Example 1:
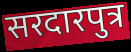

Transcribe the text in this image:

सरदारपुत्र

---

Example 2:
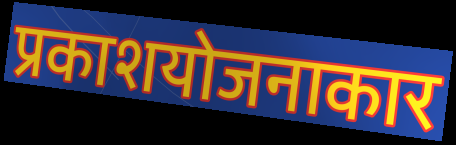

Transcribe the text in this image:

प्रकाशयोजनाकार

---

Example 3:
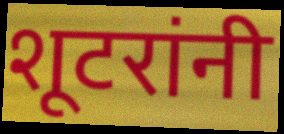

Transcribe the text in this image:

शूटरांनी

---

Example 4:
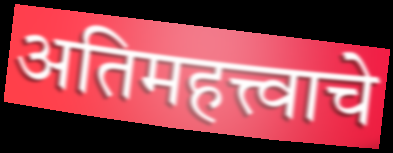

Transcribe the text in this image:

अतिमहत्त्वाचे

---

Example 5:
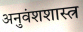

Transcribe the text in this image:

अनुवंशशास्त्र